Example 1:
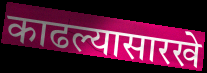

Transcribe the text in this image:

काढल्यासारखे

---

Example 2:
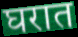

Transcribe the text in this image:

घरात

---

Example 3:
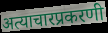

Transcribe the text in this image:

अत्याचारप्रकरणी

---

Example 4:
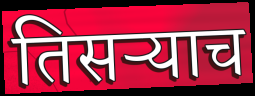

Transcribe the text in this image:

तिसऱ्याच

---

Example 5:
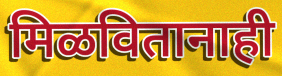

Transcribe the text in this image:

मिळवितानाही